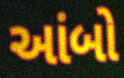
આંબો